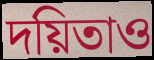
দয়িতাও